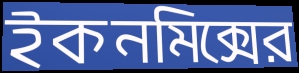
ইকনমিক্সের